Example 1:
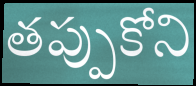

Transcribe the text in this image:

తప్పుకోని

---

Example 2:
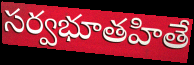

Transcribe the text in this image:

సర్వభూతహితే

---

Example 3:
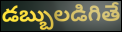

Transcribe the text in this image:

డబ్బులడిగితే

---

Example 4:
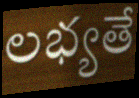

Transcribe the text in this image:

లభ్యతే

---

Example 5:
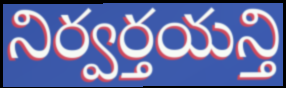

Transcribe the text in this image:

నిర్వర్తయన్తి